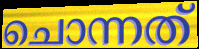
ചൊന്നത്